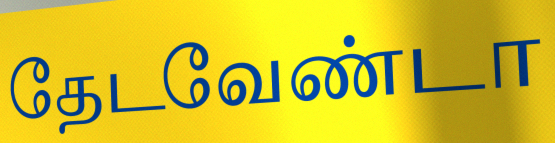
தேடவேண்டா